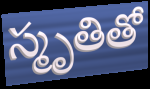
స్మృతితో